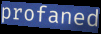
profaned